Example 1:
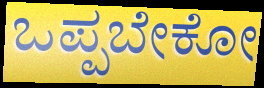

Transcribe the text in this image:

ಒಪ್ಪಬೇಕೋ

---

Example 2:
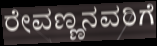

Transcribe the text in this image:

ರೇವಣ್ಣನವರಿಗೆ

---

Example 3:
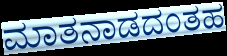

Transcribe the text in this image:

ಮಾತನಾಡದಂತಹ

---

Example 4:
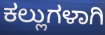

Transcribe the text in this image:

ಕಲ್ಲುಗಳಾಗಿ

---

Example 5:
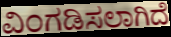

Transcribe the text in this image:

ವಿಂಗಡಿಸಲಾಗಿದೆ